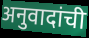
अनुवादांची